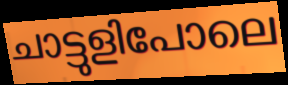
ചാട്ടുളിപോലെ